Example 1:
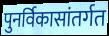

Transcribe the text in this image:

पुनर्विकासांतर्गत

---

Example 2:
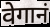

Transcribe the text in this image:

वेगानं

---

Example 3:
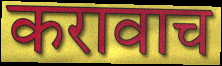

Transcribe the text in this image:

करावाच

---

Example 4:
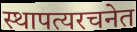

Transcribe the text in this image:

स्थापत्यरचनेत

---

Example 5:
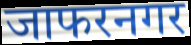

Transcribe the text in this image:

जाफरनगर